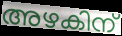
അഴകിന്